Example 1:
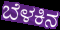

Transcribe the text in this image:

ಬೆಳಕಿನ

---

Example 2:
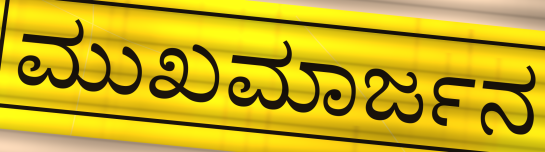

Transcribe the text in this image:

ಮುಖಮಾರ್ಜನ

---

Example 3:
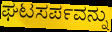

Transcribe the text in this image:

ಘಟಸರ್ಪವನ್ನು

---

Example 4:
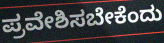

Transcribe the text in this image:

ಪ್ರವೇಶಿಸಬೇಕೆಂದು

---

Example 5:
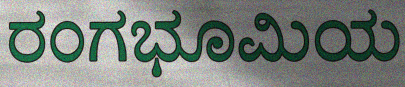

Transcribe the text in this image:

ರಂಗಭೂಮಿಯ